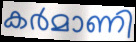
കർമാണി